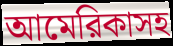
আমেরিকাসহ